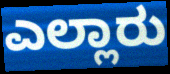
ಎಲ್ಲಾರು